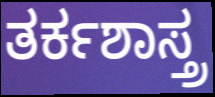
ತರ್ಕಶಾಸ್ತ್ರ